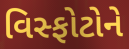
વિસ્ફોટોને